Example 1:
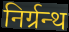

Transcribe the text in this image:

निर्ग्रन्थ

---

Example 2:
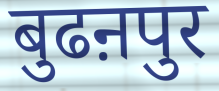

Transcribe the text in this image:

बुढऩपुर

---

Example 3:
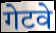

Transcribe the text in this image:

गेटवे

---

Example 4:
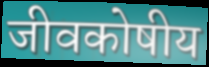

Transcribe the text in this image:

जीवकोषीय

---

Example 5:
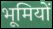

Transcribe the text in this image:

भूमियों